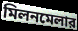
মিলনমেলার